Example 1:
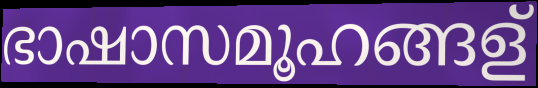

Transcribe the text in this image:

ഭാഷാസമൂഹങ്ങള്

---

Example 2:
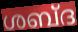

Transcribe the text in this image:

ശബ്ദ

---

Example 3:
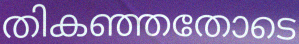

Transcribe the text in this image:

തികഞ്ഞതോടെ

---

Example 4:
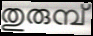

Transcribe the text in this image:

തുരുമ്പ്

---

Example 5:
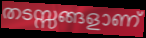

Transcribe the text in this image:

തടസ്സങ്ങളാണ്